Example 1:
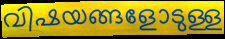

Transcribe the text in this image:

വിഷയങ്ങളോടുള്ള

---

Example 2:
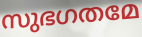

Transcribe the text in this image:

സുഭഗതമേ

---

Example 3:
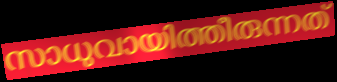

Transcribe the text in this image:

സാധുവായിത്തീരുന്നത്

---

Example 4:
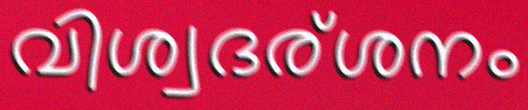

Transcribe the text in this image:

വിശ്വദര്ശനം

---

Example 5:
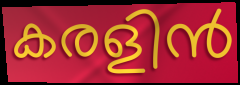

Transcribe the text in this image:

കരളിൻ